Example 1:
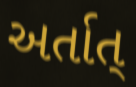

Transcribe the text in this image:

અર્તાત્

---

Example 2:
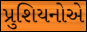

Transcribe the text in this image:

પ્રુશિયનોએ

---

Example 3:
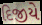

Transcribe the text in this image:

દિજીયે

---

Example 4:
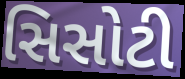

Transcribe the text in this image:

સિસોટી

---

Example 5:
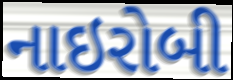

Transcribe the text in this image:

નાઇરોબી